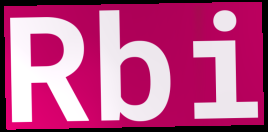
Rbi